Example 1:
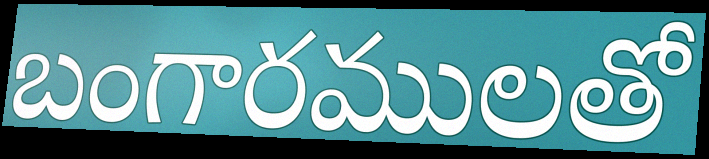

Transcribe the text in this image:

బంగారములతో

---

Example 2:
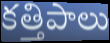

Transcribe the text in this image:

కత్తిపాలు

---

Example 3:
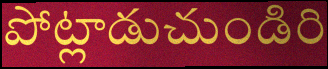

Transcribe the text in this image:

పోట్లాడుచుండిరి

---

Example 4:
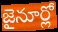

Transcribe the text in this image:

జైనూర్లో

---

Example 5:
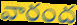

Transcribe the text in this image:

వారంద